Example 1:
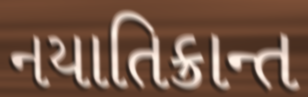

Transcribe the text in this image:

નયાતિક્રાન્ત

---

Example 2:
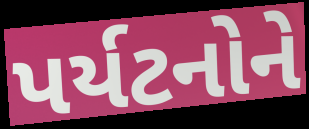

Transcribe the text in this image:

પર્યટનોને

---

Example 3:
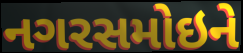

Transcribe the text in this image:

નગરસમોઇને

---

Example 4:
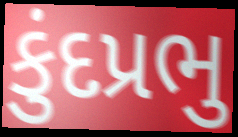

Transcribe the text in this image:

કુંદપ્રભુ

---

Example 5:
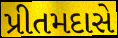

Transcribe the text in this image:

પ્રીતમદાસે